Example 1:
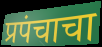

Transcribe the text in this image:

प्रपंचाचा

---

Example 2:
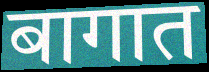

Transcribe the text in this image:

बागात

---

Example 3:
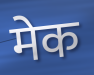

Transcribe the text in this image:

मेक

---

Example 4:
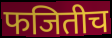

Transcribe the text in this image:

फजितीच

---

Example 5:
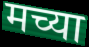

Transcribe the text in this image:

मच्या